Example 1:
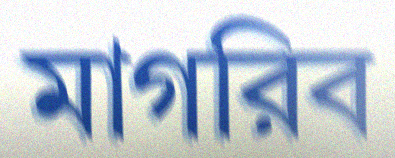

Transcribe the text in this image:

মাগরিব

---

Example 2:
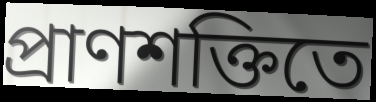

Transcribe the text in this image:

প্রাণশক্তিতে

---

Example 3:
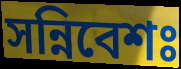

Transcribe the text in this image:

সন্নিবেশঃ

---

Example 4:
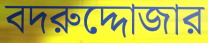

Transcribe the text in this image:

বদরুদ্দোজার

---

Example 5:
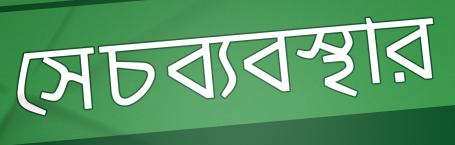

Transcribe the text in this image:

সেচব্যবস্থার